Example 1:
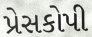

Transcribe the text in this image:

પ્રેસકોપી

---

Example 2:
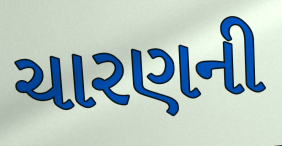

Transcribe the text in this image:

ચારણની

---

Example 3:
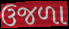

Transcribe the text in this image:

ઉજળા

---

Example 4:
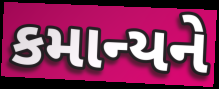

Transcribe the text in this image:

કમાન્યને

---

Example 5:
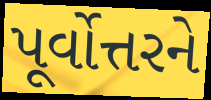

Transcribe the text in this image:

પૂર્વોત્તરને